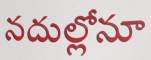
నదుల్లోనూ